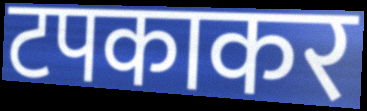
टपकाकर